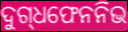
ଦୁଗ୍‍ଧଫେନନିଭ